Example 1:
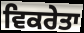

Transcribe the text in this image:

ਵਿਕਰੇਤਾ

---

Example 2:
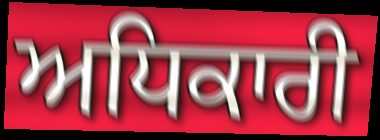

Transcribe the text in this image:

ਅਧਿਕਾਰੀ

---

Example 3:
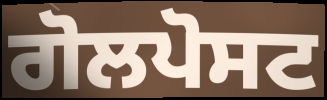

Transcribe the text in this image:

ਗੋਲਪੋਸਟ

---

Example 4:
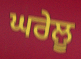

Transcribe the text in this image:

ਘਰੇਲੂ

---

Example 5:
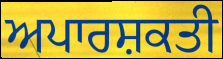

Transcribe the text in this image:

ਅਪਾਰਸ਼ਕਤੀ